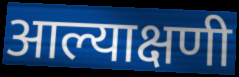
आल्याक्षणी